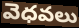
వెధవలు